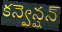
కన్వెన్షన్